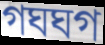
গঘঘগ